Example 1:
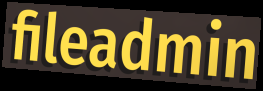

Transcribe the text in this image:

fileadmin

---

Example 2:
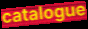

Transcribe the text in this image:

catalogue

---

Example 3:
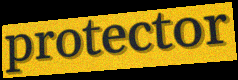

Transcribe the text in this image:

protector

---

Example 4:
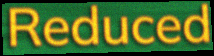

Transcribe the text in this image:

Reduced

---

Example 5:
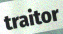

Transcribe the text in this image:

traitor